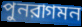
পুনরাগমন